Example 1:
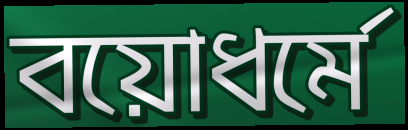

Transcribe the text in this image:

বয়োধর্মে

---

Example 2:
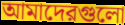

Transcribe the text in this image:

আমাদেরগুলো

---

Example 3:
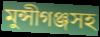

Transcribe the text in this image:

মুন্সীগঞ্জসহ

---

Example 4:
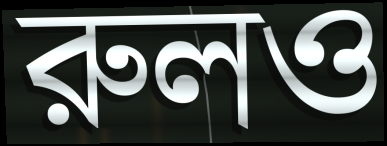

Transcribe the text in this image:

রুলও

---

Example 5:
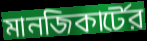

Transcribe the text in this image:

মানজিকার্টের